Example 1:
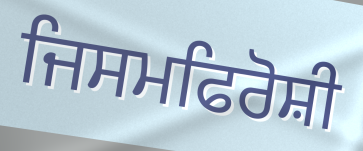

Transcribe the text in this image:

ਜਿਸਮਫਿਰੋਸ਼ੀ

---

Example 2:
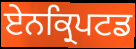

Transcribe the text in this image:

ਏਨਕ੍ਰਿਪਟਡ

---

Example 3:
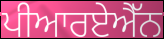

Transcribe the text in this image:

ਪੀਆਰਏਐੱਨ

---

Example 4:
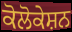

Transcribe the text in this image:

ਕੋਲੋਕੇਸ਼ਨ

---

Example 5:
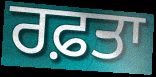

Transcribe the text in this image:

ਰਫ਼ਤਾ